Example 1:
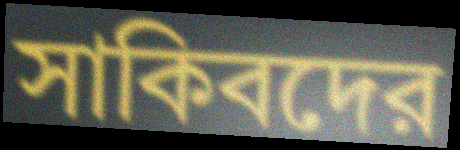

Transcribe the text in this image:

সাকিবদের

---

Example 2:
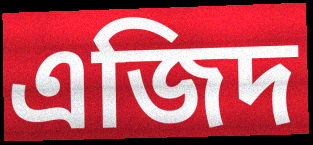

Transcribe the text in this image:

এজিদ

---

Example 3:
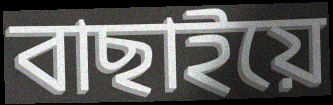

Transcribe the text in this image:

বাছাইয়ে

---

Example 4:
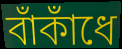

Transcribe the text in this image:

বাঁকাঁধে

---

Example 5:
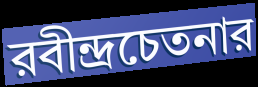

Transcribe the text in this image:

রবীন্দ্রচেতনার